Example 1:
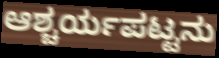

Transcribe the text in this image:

ಆಶ್ಚರ್ಯಪಟ್ಟನು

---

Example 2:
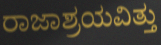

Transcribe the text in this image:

ರಾಜಾಶ್ರಯವಿತ್ತು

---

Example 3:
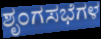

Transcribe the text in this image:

ಶೃಂಗಸಭೆಗಳ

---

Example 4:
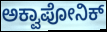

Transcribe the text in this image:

ಅಕ್ವಾಪೋನಿಕ್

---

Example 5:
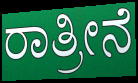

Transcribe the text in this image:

ರಾತ್ರೀನೆ